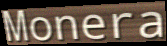
Monera